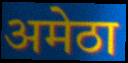
अमेठा